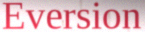
Eversion